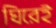
ঘিরেই